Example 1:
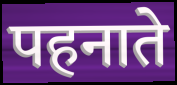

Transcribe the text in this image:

पहनाते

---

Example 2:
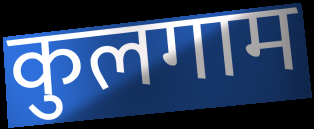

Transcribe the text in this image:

कुलगाम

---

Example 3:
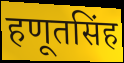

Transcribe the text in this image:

हणूतसिंह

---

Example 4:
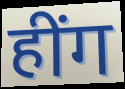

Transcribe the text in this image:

हींग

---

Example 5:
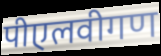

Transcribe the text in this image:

पीएलवीगण